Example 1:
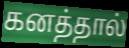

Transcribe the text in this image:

கனத்தால்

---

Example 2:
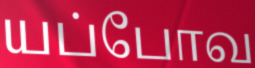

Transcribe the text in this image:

யப்போவ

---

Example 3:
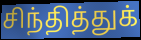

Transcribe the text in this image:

சிந்தித்துக்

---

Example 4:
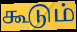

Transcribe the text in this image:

கூடும்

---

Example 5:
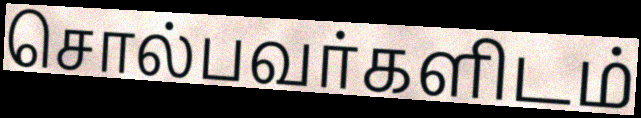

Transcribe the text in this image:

சொல்பவர்களிடம்